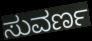
ಸುವರ್ಣ